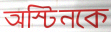
অস্টিনকে